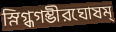
স্নিগ্ধগম্ভীরঘোষম্